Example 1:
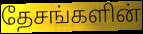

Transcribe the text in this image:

தேசங்களின்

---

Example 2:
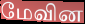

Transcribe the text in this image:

மேவின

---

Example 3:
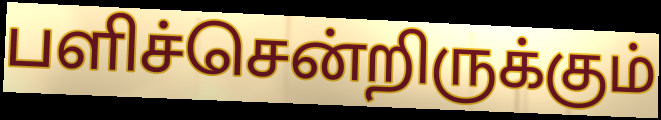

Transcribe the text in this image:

பளிச்சென்றிருக்கும்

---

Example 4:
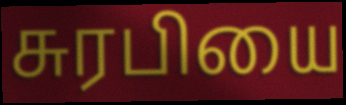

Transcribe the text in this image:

சுரபியை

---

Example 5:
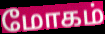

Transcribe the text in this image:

மோகம்